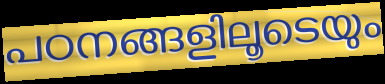
പഠനങ്ങളിലൂടെയും